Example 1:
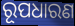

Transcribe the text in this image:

ରୂପଧାରଣ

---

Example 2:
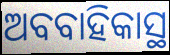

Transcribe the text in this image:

ଅବବାହିକାସ୍ଥ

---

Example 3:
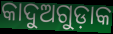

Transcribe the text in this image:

କାଦୁଅଗୁଡ଼ାକ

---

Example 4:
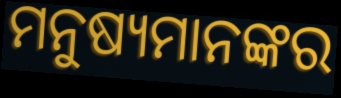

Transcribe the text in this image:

ମନୁଷ୍ୟମାନଙ୍କର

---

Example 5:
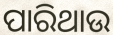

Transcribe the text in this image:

ପାରିଥାଉ